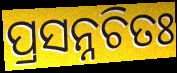
ପ୍ରସନ୍ନଚିତଃ